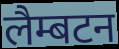
लैम्बटन